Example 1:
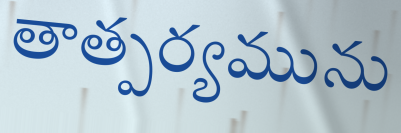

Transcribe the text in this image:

తాత్పర్యమును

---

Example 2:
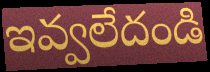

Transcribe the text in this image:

ఇవ్వలేదండి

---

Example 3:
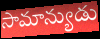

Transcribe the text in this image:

సామాన్యుడు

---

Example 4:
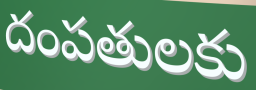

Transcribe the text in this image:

దంపతులకు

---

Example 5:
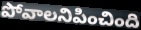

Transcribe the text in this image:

పోవాలనిపించింది